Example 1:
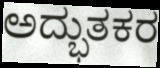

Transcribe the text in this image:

ಅದ್ಭುತಕರ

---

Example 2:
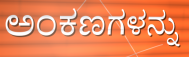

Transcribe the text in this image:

ಅಂಕಣಗಳನ್ನು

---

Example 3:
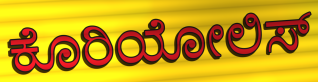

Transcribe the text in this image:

ಕೊರಿಯೋಲಿಸ್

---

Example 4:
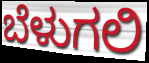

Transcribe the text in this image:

ಬೆಳುಗಲಿ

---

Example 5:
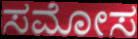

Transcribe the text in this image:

ಸಮೋಸ